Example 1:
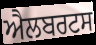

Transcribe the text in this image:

ਐਲਬਰਟਸ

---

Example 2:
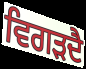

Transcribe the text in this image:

ਵਿਗੜਦੈ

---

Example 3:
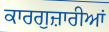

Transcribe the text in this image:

ਕਾਰਗੁਜ਼ਾਰੀਆਂ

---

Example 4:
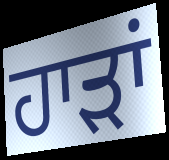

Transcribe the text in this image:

ਹਾੜਾਂ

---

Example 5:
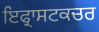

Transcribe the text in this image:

ਇਫ੍ਰਾਸਟਕਚਰ